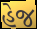
હેજ